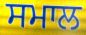
ਸਮਾਲ